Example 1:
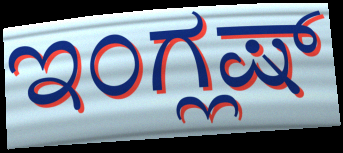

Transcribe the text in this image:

ಇಂಗ್ಲಷ್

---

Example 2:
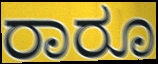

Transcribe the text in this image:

ರಾರೂ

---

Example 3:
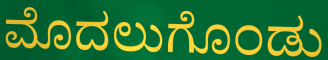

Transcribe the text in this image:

ಮೊದಲುಗೊಂಡು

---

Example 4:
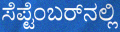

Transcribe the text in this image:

ಸೆಪ್ಟೆಂಬರ್‌ನಲ್ಲಿ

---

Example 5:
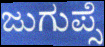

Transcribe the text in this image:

ಜುಗುಪ್ಸೆ